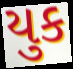
યુક